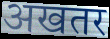
अखतर